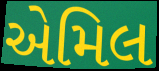
એમિલ